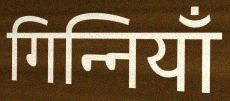
गिन्नियाँ